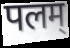
पलम्